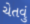
ચેતવું